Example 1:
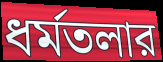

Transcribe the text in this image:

ধর্মতলার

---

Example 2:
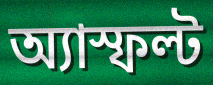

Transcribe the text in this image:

অ্যাস্ফল্ট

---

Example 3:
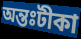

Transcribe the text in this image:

অন্তঃটীকা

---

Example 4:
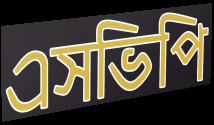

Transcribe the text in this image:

এসভিপি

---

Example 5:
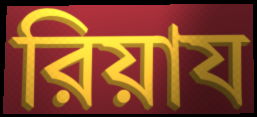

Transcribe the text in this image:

রিয়ায